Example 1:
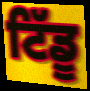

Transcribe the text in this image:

ਟਿੱਡੂ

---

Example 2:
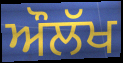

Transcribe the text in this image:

ਔਲੱਖ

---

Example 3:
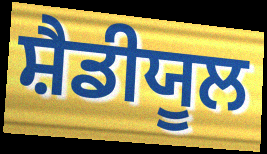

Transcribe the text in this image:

ਸ਼ੈਡੀਯੂਲ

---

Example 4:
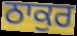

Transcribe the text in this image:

ਠਾਕੁਰ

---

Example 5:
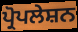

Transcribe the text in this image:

ਪ੍ਰੋਪਲੇਸ਼ਨ